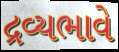
દ્રવ્યભાવે